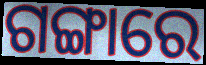
ଗଙ୍ଗାରେ